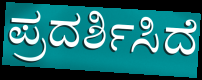
ಪ್ರದರ್ಶಿಸಿದೆ